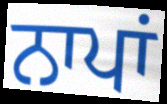
ਨਾਪਾਂ